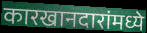
कारखानदारांमध्ये